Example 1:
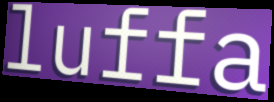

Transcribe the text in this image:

luffa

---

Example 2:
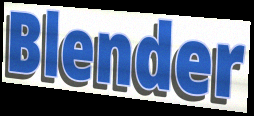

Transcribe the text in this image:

Blender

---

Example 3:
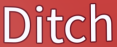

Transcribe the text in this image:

Ditch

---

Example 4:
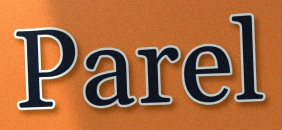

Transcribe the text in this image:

Parel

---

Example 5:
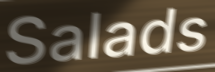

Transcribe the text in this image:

Salads